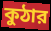
কুঠার